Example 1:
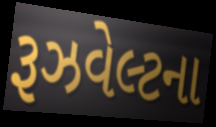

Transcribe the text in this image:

રૂઝવેલ્ટના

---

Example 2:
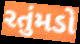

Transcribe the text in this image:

રતુંમડો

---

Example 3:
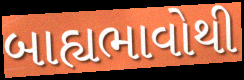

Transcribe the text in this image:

બાહ્યભાવોથી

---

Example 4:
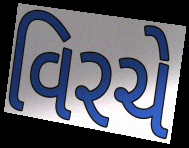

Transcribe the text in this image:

વિરચે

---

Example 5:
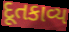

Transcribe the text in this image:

દૂતકાવ્ય